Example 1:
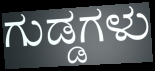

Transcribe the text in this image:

ಗುಡ್ಡಗಳು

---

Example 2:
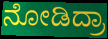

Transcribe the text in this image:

ನೋಡಿದ್ರಾ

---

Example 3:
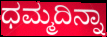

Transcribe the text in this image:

ಧಮ್ಮದಿನ್ನಾ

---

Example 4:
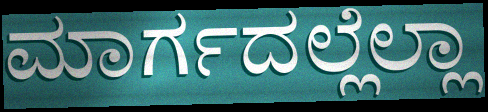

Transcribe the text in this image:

ಮಾರ್ಗದಲ್ಲೆಲ್ಲಾ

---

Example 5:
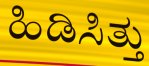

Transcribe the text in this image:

ಹಿಡಿಸಿತ್ತು